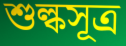
শুল্কসূত্র